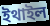
ইথাইল